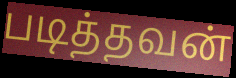
படித்தவன்